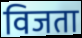
विजता